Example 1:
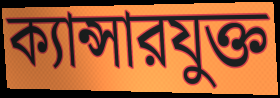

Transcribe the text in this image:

ক্যান্সারযুক্ত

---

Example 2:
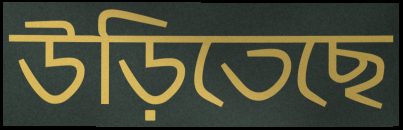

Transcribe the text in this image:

উড়িতেছে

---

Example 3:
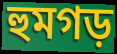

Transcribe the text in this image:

হুমগড়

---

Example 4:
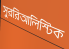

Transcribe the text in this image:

সুররিআলিস্টিক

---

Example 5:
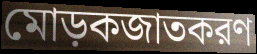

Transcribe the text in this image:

মোড়কজাতকরণ